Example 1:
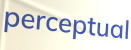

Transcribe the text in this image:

perceptual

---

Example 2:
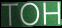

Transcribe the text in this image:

TOH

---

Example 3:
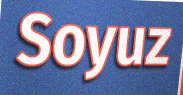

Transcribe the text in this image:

Soyuz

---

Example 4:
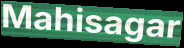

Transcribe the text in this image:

Mahisagar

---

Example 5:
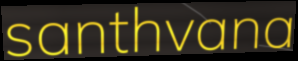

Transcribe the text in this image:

santhvana